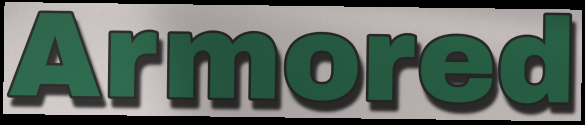
Armored